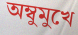
অম্বুমুখে